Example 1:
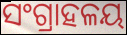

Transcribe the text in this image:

ସଂଗ୍ରାହଳୟ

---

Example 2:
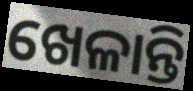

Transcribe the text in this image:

ଖେଳାନ୍ତି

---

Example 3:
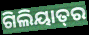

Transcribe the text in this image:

ଗିଲିୟାତ୍‍ର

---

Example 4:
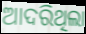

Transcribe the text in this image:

ଆଦରିଥିଲା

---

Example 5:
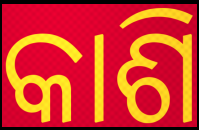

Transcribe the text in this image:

କାଶି